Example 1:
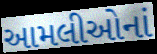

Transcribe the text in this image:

આમલીઓનાં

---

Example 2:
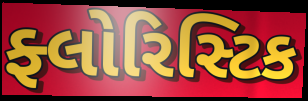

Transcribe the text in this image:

ફ્લોરિસ્ટિક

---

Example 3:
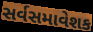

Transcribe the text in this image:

સર્વસમાવેશક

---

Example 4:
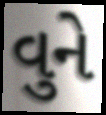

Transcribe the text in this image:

વુને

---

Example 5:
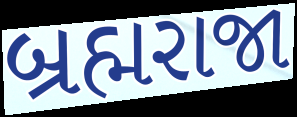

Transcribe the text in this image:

બ્રહ્મરાજા